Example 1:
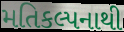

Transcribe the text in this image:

મતિકલ્પનાથી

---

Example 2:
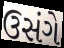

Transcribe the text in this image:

ઉસંગે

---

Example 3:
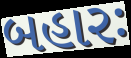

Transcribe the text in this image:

બહારઃ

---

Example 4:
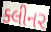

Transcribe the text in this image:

ક્લીનર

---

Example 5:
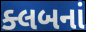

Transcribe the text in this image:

ક્લબનાં